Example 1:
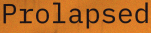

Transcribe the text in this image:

Prolapsed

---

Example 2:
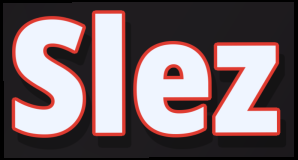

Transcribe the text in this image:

Slez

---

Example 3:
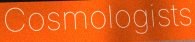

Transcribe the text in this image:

Cosmologists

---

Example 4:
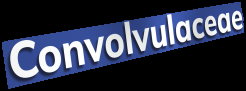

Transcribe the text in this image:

Convolvulaceae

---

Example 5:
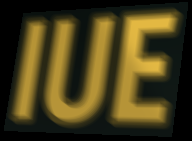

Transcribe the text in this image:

IUE